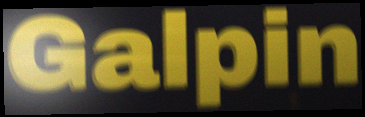
Galpin